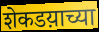
शेकडय़ाच्या